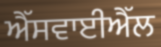
ਐੱਸਵਾਈਐੱਲ